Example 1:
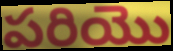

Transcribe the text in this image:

పరియొ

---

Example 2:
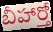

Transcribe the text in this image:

బీహార్తో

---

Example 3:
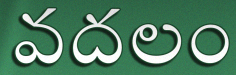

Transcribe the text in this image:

వదలం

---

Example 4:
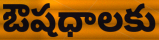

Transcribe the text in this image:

ఔషధాలకు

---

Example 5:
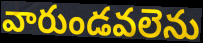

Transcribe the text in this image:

వారుండవలెను